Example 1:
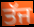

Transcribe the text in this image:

ਤੱਜ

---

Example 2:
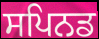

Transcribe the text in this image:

ਸਪਿਨਡ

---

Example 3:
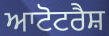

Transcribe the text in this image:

ਆਟੋਟਰੈਸ਼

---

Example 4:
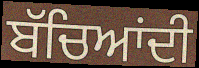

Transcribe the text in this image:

ਬੱਚਿਆਂਦੀ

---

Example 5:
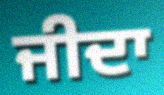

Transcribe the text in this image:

ਜੀਦਾ